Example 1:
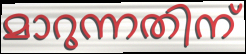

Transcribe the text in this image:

മാറുന്നതിന്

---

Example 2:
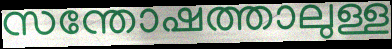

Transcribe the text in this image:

സന്തോഷത്താലുള്ള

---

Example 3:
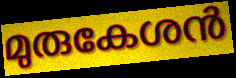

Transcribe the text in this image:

മുരുകേശൻ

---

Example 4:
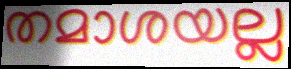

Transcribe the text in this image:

തമാശയല്ല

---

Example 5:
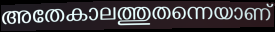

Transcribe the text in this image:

അതേകാലത്തുതന്നെയാണ്